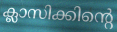
ക്ലാസിക്കിന്റെ